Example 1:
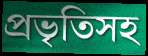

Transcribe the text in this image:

প্রভৃতিসহ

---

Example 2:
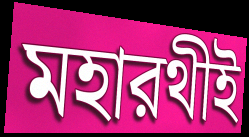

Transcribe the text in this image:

মহারথীই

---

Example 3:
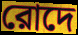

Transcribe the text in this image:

রোদে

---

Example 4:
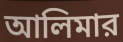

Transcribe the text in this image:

আলিমার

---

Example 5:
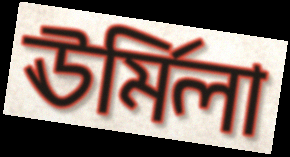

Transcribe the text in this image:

ঊর্মিলা